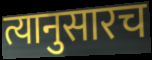
त्यानुसारच